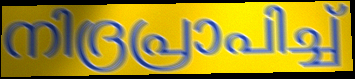
നിദ്രപ്രാപിച്ച്